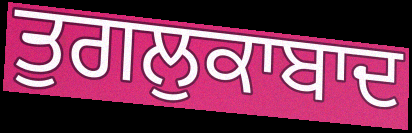
ਤੁਗਲੁਕਾਬਾਦ